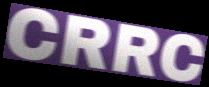
CRRC